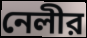
নেলীর